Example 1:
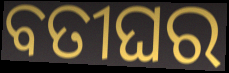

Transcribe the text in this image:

ବତୀଘର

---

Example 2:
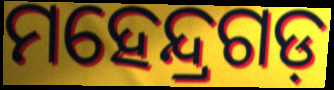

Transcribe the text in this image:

ମହେନ୍ଦ୍ରଗଡ଼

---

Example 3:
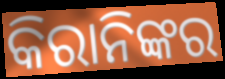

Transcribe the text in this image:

କିରାନିଙ୍କର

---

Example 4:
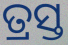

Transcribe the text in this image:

ତ୍ରସ୍ତ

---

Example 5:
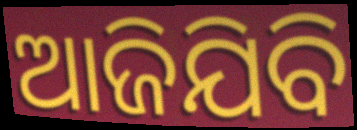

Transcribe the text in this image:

ଆଜିଯିବି